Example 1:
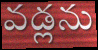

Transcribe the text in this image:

వడ్లను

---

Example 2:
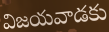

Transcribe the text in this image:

విజయవాడకు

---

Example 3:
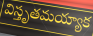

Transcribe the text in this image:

విస్తృతమయ్యాక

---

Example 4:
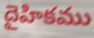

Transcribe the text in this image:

దైహికము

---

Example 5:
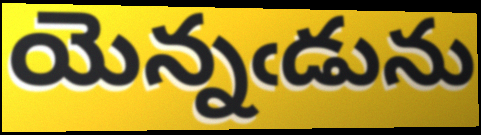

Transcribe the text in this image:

యెన్నఁడును